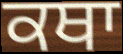
ਕਥਾ